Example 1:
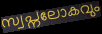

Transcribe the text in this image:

സ്വപ്നലോകവും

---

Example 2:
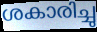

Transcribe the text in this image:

ശകാരിച്ചു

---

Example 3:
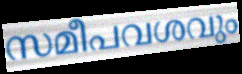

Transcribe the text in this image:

സമീപവശവും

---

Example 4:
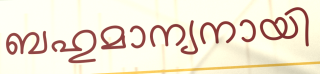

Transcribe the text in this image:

ബഹുമാന്യനായി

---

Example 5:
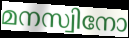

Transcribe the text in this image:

മനസ്വിനോ